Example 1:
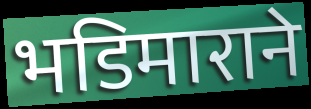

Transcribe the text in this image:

भडिमाराने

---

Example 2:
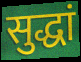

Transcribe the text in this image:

सुद्धां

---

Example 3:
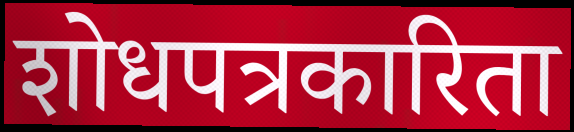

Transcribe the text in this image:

शोधपत्रकारिता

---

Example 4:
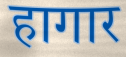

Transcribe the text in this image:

हागार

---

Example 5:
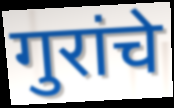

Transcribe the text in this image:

गुरांचे